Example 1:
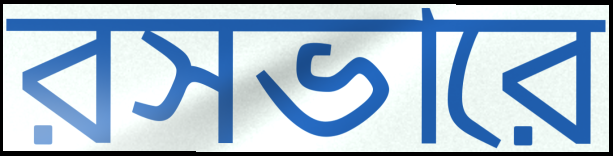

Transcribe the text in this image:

রসভারে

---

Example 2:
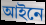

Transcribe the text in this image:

আইনে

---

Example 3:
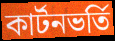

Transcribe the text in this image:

কার্টনভর্তি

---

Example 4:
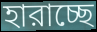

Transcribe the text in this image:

হারাচ্ছে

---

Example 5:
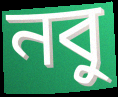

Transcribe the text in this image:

নবু